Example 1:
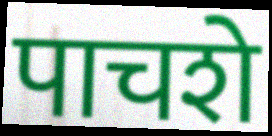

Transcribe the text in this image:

पाचशे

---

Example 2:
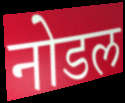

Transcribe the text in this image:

नोडल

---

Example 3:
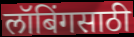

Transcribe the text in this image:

लॉबिंगसाठी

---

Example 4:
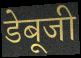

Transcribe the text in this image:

डेबूजी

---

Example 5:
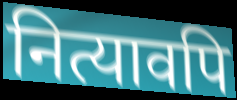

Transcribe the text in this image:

नित्यावपि